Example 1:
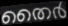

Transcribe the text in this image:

തൈർ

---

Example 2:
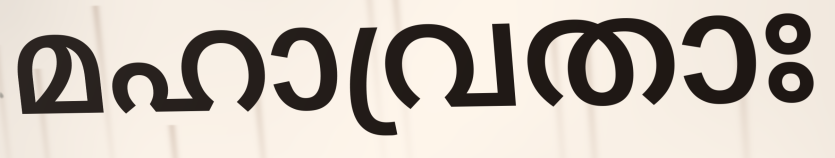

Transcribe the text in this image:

മഹാവ്രതാഃ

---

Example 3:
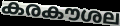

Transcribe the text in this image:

കരകൗശല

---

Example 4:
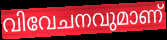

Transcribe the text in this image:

വിവേചനവുമാണ്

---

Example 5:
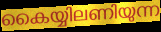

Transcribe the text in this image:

കൈയ്യിലണിയുന്ന